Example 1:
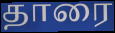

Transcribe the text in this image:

தாரை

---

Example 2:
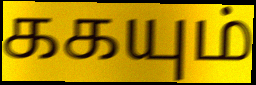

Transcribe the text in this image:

ககயும்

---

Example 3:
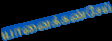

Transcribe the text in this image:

யானைக்கண்சேய்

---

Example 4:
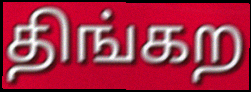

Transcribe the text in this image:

திங்கற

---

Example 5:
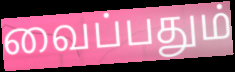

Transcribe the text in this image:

வைப்பதும்